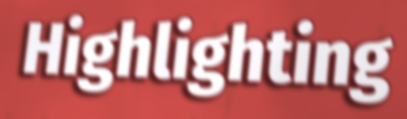
Highlighting